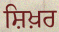
ਸ਼ਿਖ਼ਰ